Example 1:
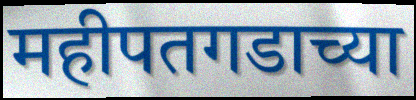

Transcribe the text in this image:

महीपतगडाच्या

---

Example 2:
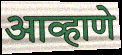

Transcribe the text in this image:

आव्हाणे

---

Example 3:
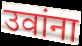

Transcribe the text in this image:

उवांना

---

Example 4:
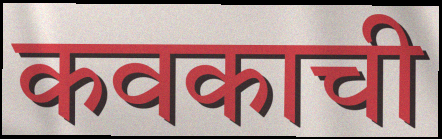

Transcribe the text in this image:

कवकाची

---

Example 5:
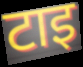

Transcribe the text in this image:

टाइ